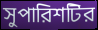
সুপারিশটির